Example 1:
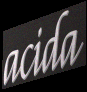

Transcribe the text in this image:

acida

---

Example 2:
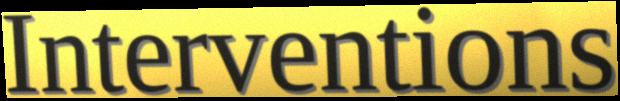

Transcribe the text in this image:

Interventions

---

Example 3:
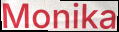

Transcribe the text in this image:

Monika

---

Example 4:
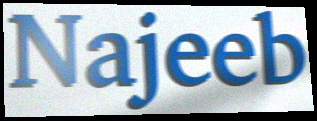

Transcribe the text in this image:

Najeeb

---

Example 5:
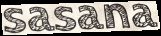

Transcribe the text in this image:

sasana